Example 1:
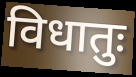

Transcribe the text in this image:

विधातुः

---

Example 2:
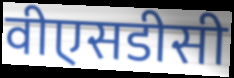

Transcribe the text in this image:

वीएसडीसी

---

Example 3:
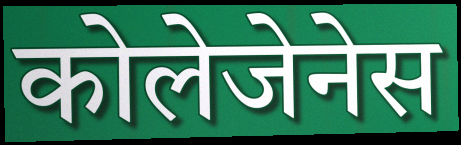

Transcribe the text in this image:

कोलेजेनेस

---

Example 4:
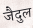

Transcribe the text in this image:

जैदुल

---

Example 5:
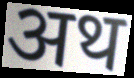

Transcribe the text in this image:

अथ